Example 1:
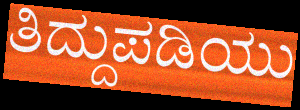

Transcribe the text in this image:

ತಿದ್ದುಪಡಿಯು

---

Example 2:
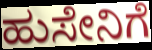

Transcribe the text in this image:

ಹುಸೇನಿಗೆ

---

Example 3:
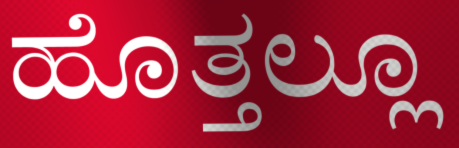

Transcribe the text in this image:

ಹೊತ್ತಲ್ಲೂ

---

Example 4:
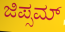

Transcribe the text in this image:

ಜಿಪ್ಸಮ್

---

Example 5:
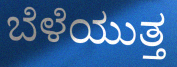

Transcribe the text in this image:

ಬೆಳೆಯುತ್ತ